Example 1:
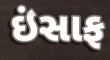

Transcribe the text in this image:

ઇંસાફ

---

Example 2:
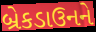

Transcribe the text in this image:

બ્રેકડાઉનને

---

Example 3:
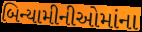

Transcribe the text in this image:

બિન્યામીનીઓમાંના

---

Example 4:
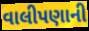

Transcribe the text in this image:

વાલીપણાની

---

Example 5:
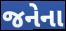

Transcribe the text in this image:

જનેના